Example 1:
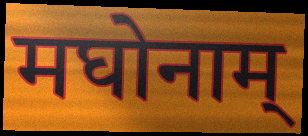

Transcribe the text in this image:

मघोनाम्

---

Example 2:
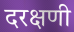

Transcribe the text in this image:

दरक्षणी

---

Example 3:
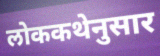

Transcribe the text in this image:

लोककथेनुसार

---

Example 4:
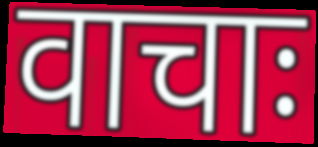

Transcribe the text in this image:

वाचाः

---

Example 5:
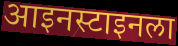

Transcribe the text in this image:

आइनस्टाइनला